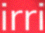
irri